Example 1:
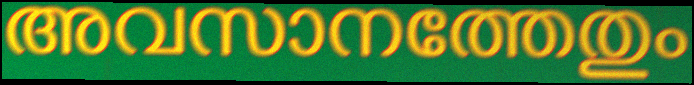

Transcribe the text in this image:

അവസാനത്തേതും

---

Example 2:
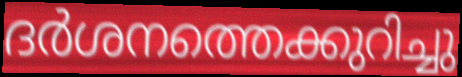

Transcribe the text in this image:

ദർശനത്തെക്കുറിച്ചു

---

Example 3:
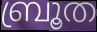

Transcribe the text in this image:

ബ്രൂത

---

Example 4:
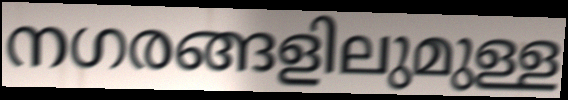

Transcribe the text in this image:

നഗരങ്ങളിലുമുള്ള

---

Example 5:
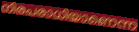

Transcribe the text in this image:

നിരപരാധിയാണെന്ന